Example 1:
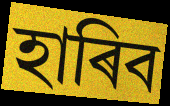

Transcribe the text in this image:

হাৰিব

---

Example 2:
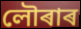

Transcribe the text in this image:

লৌৰাৰ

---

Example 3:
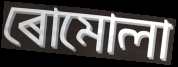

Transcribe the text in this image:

ৰোমোলা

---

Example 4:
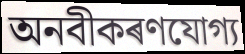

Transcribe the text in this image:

অনবীকৰণযোগ্য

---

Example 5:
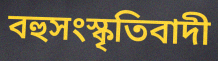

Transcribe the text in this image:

বহুসংস্কৃতিবাদী